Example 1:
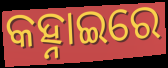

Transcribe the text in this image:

କହ୍ନାଇରେ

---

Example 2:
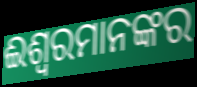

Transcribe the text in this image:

ଈଶ୍ୱରମାନଙ୍କର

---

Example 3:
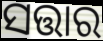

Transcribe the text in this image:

ସତ୍ତାର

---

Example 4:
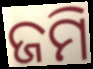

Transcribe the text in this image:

ଜମି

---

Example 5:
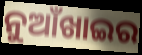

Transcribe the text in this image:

ନୁଆଁଖାଇର